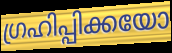
ഗ്രഹിപ്പിക്കയോ